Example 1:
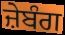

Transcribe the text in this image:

ਜ਼ੇਬੰਗ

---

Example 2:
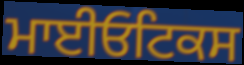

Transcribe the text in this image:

ਮਾਈਓਟਿਕਸ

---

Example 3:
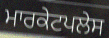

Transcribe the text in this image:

ਮਾਰਕੇਟਪਲੇਸ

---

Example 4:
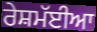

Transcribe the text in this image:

ਰੇਸ਼ਮੱਈਆ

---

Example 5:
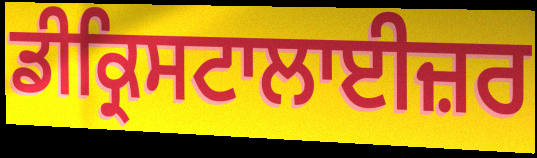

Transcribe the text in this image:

ਡੀਕ੍ਰਿਸਟਾਲਾਈਜ਼ਰ